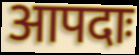
आपदाः